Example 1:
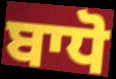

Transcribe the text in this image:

ਬਾਧੋ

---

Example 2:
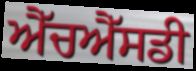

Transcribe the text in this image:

ਐੱਚਐੱਸਡੀ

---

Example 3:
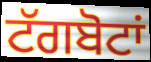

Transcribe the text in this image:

ਟੱਗਬੋਟਾਂ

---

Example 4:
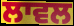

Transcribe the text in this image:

ਲਾਵਲ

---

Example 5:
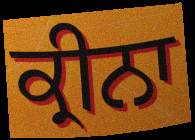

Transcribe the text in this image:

ਕ੍ਰੀਨਾ